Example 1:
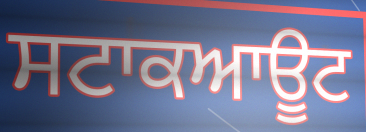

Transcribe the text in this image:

ਸਟਾਕਆਊਟ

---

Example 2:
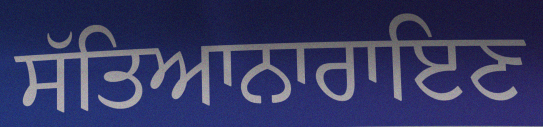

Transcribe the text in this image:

ਸੱਤਿਆਨਾਰਾਇਣ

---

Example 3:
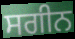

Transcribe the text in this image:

ਸਗੀਨ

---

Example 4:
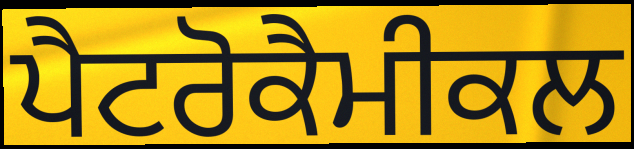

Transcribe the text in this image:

ਪੈਟਰੋਕੈਮੀਕਲ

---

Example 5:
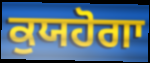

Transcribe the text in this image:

ਕੁਯਹੋਗਾ